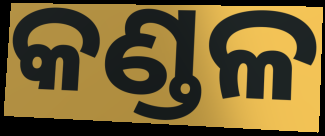
କଣ୍ଡଳ